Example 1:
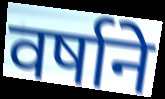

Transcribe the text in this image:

वर्षाने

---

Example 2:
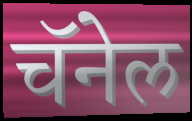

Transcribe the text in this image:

चॅनेल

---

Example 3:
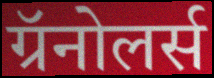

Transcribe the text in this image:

ग्रॅनोलर्स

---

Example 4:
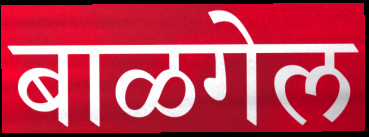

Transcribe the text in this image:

बाळगेल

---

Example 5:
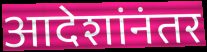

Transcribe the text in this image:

आदेशांनंतर